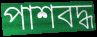
পাশবদ্ধ